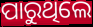
ପାରୁଥିଲେ